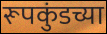
रूपकुंडच्या